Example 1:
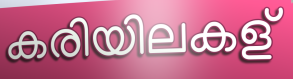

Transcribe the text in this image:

കരിയിലകള്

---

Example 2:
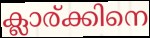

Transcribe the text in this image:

ക്ലാര്ക്കിനെ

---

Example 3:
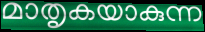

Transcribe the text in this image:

മാതൃകയാകുന്ന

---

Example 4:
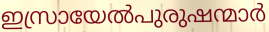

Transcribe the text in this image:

ഇസ്രായേൽപുരുഷന്മാർ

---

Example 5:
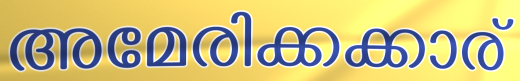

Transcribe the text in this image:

അമേരിക്കക്കാര്